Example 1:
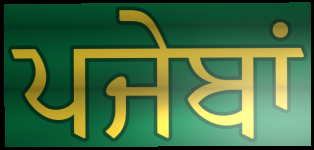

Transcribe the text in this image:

ਪਜੇਬਾਂ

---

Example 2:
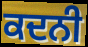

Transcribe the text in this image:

ਕਦਨੀ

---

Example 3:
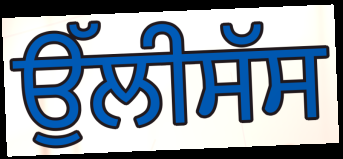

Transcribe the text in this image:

ਉੱਲੀਸੱਸ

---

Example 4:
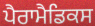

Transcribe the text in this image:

ਪੈਰਾਮੈਡਿਕਸ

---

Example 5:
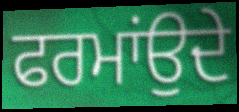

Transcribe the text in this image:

ਫਰਮਾਂਉਦੇ